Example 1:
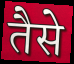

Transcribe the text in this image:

तैसे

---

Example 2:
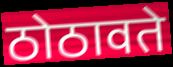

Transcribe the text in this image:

ठोठावते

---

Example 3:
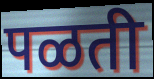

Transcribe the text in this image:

पळती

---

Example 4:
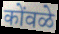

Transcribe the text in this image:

कोंवळे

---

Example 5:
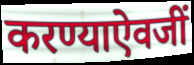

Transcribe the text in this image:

करण्याऐवजीं